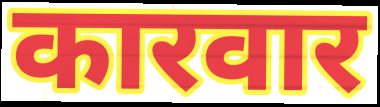
कारवार